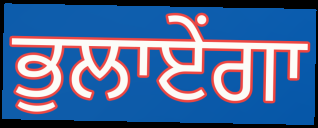
ਭੁਲਾਏਂਗਾ